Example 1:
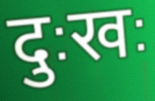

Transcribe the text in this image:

दुःखः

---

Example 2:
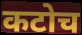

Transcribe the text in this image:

कटोच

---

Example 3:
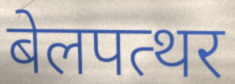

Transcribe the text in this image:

बेलपत्थर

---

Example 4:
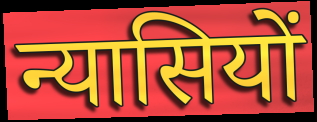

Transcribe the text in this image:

न्यासियों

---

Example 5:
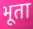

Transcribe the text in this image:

भूता